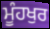
ਮੂੰਹਖੁਰ